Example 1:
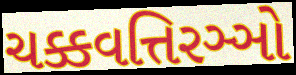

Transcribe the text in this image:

ચક્કવત્તિરઞ્ઞો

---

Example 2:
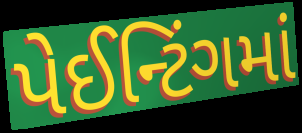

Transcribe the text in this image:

પેઈન્ટિંગમાં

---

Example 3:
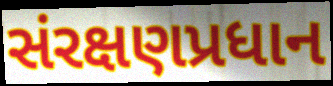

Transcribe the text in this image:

સંરક્ષણપ્રધાન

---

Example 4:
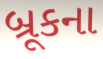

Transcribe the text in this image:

બ્રૂકના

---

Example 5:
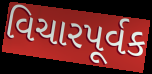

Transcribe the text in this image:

વિચારપૂર્વક